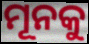
ମୂନକୁ